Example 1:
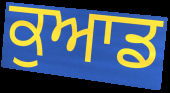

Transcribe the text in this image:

ਕੁਆਡ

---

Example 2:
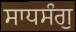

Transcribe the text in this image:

ਸਾਧਸੰਗੁ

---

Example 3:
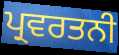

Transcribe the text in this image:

ਪ੍ਰਵਰਤਨੀ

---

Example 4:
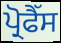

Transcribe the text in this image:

ਪ੍ਰੋਫੈੱਸ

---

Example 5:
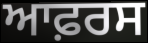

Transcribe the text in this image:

ਆਫ਼ਰਸ